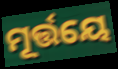
ମୂର୍ତ୍ତୟେ